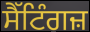
ਸੈੱਟਿੰਗਜ਼